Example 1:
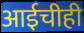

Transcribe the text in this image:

आईचीही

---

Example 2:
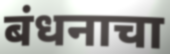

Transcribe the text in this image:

बंधनाचा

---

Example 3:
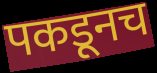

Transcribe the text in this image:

पकडूनच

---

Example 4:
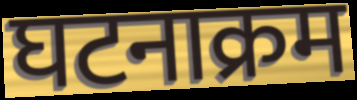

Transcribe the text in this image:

घटनाक्रम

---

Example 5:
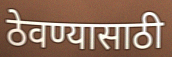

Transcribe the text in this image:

ठेवण्यासाठी